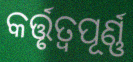
କର୍ତ୍ତୃତ୍ୱପୂର୍ଣ୍ଣ